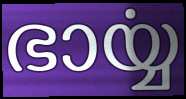
ഭാൎയ്യ